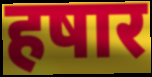
हषार